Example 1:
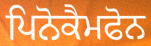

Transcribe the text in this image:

ਪਿਨੋਕੈਮਫੋਨ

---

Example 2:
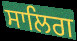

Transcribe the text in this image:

ਸਾਲਿਗ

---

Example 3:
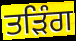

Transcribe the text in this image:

ਤੜਿੰਗ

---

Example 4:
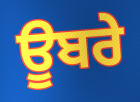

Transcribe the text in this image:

ਊਬਰੇ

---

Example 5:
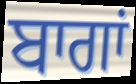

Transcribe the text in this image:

ਬਾਗਾਂ